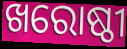
ଖରୋଷ୍ଠୀ